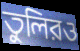
তুলিরও